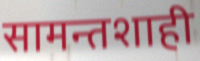
सामन्तशाही